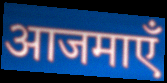
आजमाएँ